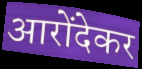
आरोंदेकर